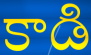
కాడి